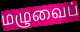
மழுவைப்